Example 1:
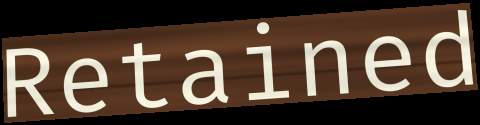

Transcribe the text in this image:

Retained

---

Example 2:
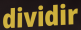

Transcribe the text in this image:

dividir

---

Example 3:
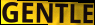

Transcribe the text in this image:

GENTLE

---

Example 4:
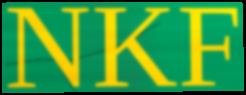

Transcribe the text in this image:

NKF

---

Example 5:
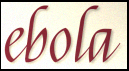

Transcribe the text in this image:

ebola